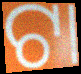
ଟା